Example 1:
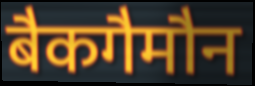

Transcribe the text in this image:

बैकगैमौन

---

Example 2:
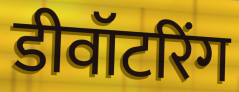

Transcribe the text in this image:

डीवॉटरिंग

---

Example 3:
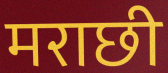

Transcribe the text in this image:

मराछी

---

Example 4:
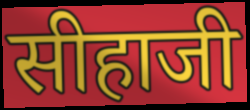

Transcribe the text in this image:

सीहाजी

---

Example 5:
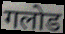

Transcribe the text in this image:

गलोड